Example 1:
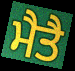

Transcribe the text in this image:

ਮੈਤੈ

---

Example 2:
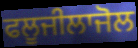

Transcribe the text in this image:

ਫਲੂਜੀਲਾਜੋਲ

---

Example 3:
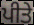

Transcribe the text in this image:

ਪੀਤੇ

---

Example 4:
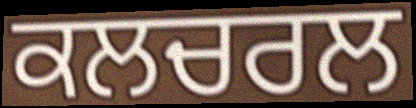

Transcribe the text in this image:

ਕਲਚਰਲ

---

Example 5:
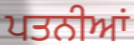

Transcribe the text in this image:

ਪਤਨੀਆਂ